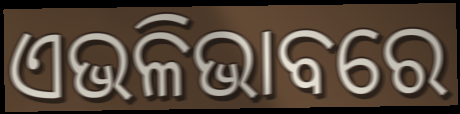
ଏଭଳିଭାବରେ